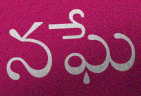
నఘే